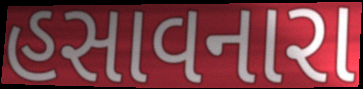
હસાવનારા